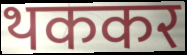
थककर